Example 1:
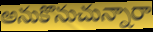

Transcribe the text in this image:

అనుకొనుచున్నారా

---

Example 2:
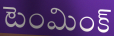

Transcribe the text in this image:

టెంమింక్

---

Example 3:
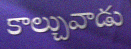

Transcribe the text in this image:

కాల్చువాడు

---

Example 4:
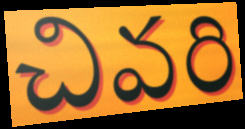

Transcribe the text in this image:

చివరి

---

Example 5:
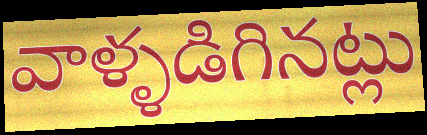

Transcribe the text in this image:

వాళ్ళడిగినట్లు